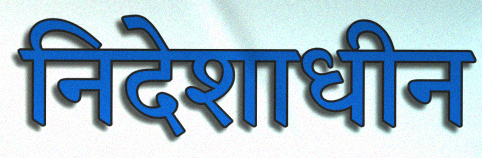
निदेशाधीन